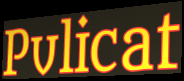
Pulicat